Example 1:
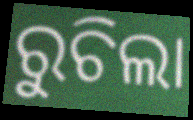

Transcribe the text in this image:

ରୁଚିଲା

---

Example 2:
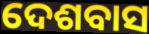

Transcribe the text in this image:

ଦେଶବାସ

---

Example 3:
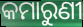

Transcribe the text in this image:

କମାରୁଣୀ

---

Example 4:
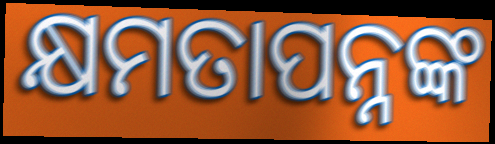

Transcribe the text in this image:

କ୍ଷମତାପନ୍ନଙ୍କ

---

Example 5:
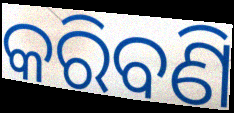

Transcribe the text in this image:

କରିବଣି